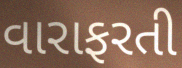
વારાફરતી